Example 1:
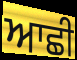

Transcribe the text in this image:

ਆਛੀ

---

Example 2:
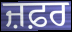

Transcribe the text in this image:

ਜ਼ਫ਼ਰ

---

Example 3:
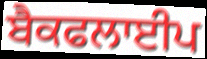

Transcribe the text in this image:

ਬੈਕਫਲਾਈਪ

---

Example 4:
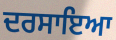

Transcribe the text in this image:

ਦਰਸਾਇਆ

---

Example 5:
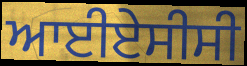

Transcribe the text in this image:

ਆਈਏਸੀਸੀ